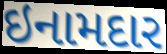
ઇનામદાર